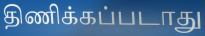
திணிக்கப்படாது